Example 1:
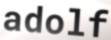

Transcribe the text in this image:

adolf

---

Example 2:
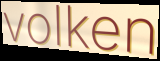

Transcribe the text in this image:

volken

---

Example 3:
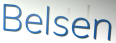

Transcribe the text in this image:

Belsen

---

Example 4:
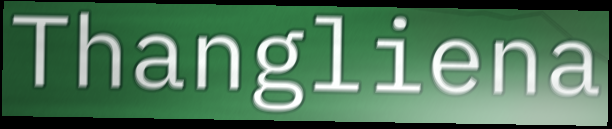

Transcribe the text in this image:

Thangliena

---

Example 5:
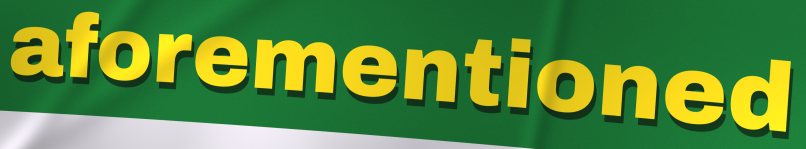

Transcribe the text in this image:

aforementioned